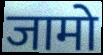
जामो